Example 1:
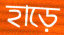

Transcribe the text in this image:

হাড়ে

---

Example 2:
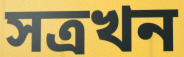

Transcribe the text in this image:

সত্ৰখন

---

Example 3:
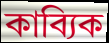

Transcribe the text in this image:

কাব্যিক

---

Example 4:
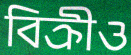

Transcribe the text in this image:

বিক্ৰীও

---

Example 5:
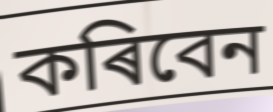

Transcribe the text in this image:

কৰিবেন